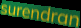
surendran